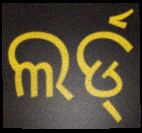
ଲର୍ଡ୍